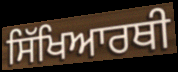
ਸਿੱਖਿਆਰਥੀ